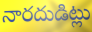
నారదుడిట్లు